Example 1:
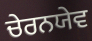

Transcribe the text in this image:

ਚੇਰਨਯੇਵ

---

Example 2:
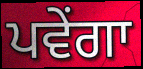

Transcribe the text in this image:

ਪਵੇਂਗਾ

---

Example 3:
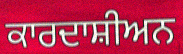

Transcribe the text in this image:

ਕਾਰਦਾਸ਼ੀਅਨ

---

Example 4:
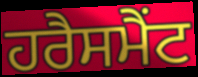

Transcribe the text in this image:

ਹਰੈਸਮੈਂਟ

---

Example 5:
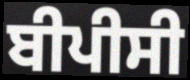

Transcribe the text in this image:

ਬੀਪੀਸੀ